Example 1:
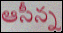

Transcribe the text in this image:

ఆసీన్న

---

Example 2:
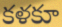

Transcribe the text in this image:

కళకూ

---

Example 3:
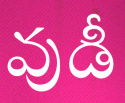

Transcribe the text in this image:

వుడీ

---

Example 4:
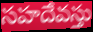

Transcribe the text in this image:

సహదేవస్తు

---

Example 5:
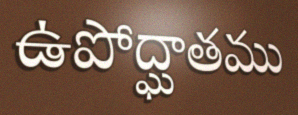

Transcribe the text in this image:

ఉపోద్ఘాతము